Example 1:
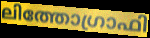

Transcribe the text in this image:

ലിത്തോഗ്രാഫി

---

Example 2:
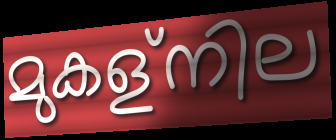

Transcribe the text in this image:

മുകള്നില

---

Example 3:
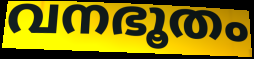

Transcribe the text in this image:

വനഭൂതം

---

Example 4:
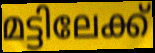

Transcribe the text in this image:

മട്ടിലേക്ക്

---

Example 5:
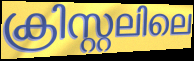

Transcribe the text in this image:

ക്രിസ്റ്റലിലെ